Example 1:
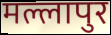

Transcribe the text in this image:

मल्लापुर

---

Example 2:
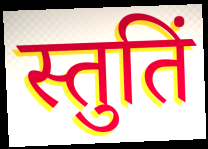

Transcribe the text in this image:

स्तुतिं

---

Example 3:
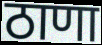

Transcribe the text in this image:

ठाणा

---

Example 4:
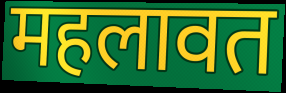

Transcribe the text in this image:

महलावत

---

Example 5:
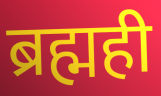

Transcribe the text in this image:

ब्रह्मही